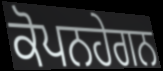
ਕੋਪਨਹੇਗਨ